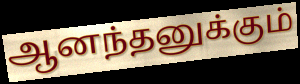
ஆனந்தனுக்கும்